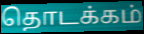
தொடக்கம்